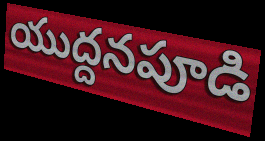
యుద్దనపూడి